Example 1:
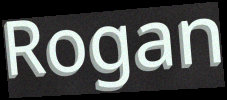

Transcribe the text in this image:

Rogan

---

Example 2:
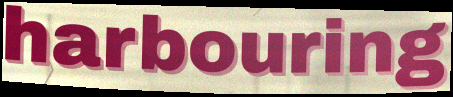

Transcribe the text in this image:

harbouring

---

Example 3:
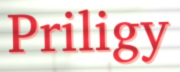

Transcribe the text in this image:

Priligy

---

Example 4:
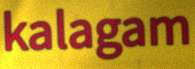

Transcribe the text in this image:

kalagam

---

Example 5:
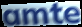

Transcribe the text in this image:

amte